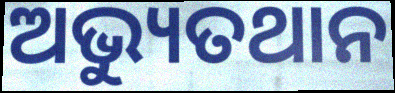
ଅଭ୍ୟୁତଥାନ